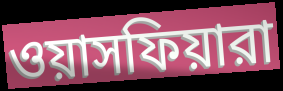
ওয়াসফিয়ারা